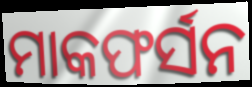
ମାକଫର୍ସନ